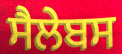
ਸੈਲੇਬਸ